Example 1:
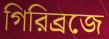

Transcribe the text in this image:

গিরিব্রজে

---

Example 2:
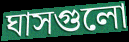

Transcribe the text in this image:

ঘাসগুলো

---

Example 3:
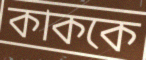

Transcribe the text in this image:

কাককে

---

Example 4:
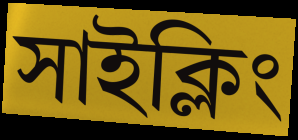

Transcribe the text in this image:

সাইক্লিং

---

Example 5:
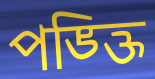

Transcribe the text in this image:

পঙ্ক্তি